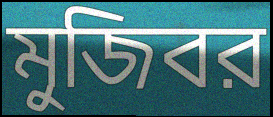
মুজিবর